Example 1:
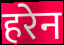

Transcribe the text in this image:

हरेन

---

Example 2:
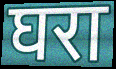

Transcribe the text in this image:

घरा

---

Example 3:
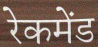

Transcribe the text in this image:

रेकमेंड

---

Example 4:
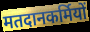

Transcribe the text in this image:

मतदानकर्मियों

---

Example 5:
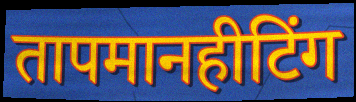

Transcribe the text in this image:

तापमानहीटिंग